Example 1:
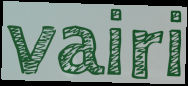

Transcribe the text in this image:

vairi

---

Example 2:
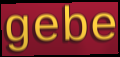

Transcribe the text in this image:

gebe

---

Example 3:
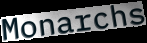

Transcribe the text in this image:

Monarchs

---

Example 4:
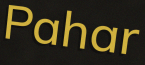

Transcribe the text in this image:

Pahar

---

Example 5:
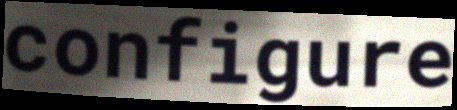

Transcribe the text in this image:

configure